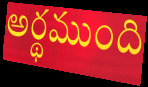
అర్థముంది